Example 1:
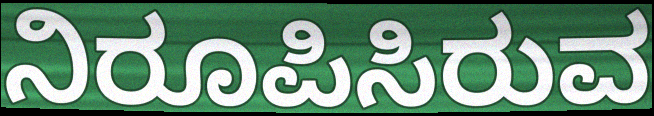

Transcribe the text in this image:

ನಿರೂಪಿಸಿರುವ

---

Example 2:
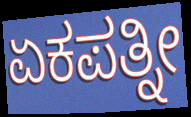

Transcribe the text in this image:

ಏಕಪತ್ನೀ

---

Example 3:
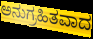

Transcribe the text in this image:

ಅನುಗ್ರಹಿತವಾದ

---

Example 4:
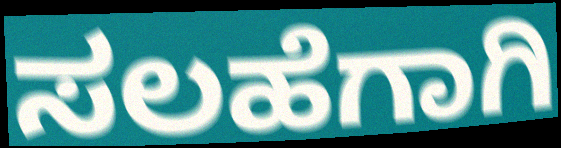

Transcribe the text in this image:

ಸಲಹೆಗಾಗಿ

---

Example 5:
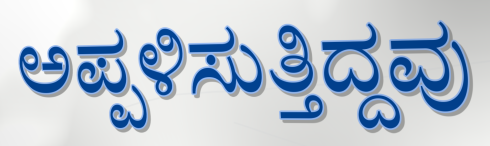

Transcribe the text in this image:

ಅಪ್ಪಳಿಸುತ್ತಿದ್ದವು